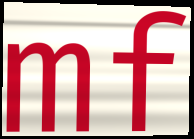
mf